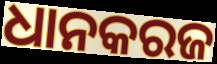
ଧାନକରଜ